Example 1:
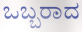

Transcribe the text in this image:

ಒಬ್ಬರಾದ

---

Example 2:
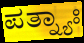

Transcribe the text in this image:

ಪತ್ನ್ಯಾಃ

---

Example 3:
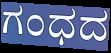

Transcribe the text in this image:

ಗಂಧದ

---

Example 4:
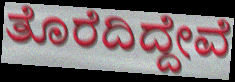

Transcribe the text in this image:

ತೊರೆದಿದ್ದೇವೆ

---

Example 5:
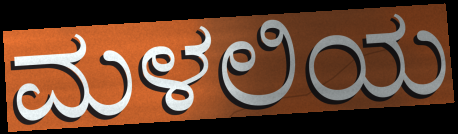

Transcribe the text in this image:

ಮಳಲಿಯ